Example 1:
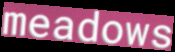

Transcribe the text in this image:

meadows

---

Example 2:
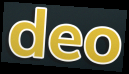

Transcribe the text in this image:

deo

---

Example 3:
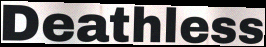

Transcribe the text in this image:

Deathless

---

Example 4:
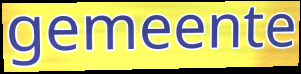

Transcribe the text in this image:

gemeente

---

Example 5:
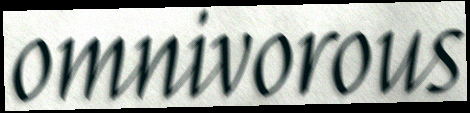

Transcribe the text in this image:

omnivorous